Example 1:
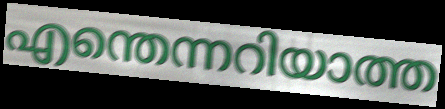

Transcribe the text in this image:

എന്തെന്നറിയാത്ത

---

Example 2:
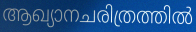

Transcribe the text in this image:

ആഖ്യാനചരിത്രത്തിൽ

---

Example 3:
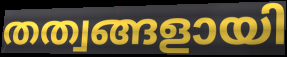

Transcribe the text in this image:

തത്വങ്ങളായി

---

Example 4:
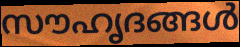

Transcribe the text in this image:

സൗഹൃദങ്ങൾ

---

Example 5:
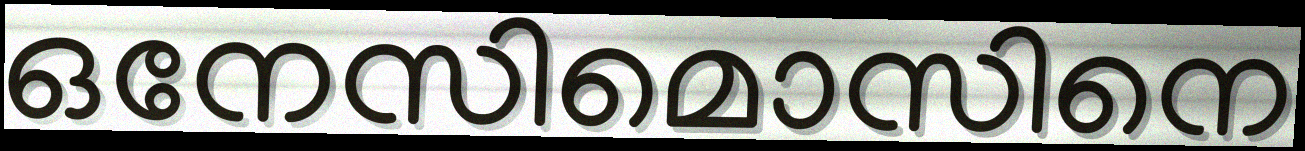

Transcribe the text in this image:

ഒനേസിമൊസിനെ